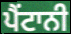
ਪੈਂਟਾਨੀ